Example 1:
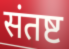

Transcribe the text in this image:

संतष्ट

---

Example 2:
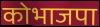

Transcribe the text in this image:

कोभाजपा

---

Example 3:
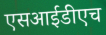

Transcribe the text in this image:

एसआईडीएच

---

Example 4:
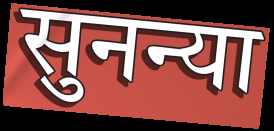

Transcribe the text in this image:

सुनन्या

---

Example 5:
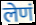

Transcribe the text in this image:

लेणं